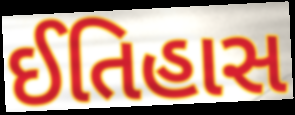
ઈતિહાસ